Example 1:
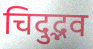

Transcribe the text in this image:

चिदुद्भव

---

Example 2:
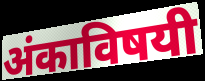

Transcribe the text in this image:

अंकाविषयी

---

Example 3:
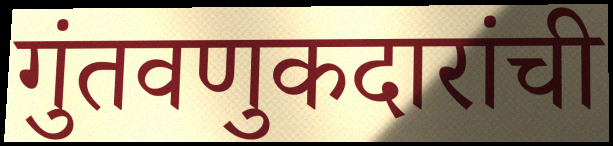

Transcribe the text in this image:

गुंतवणुकदारांची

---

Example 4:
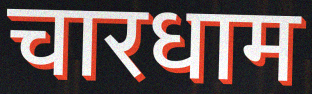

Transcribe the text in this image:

चारधाम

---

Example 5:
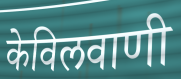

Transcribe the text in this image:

केविलवाणी